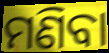
ମଣିବା